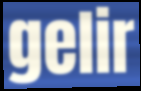
gelir